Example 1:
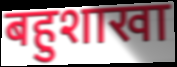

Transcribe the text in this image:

बहुशाखा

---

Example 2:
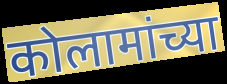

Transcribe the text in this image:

कोलामांच्या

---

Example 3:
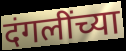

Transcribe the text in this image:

दंगलींच्या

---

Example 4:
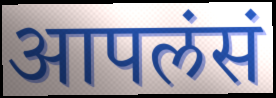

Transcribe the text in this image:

आपलंसं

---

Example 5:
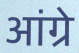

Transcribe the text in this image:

आंग्रे